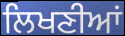
ਲਿਖਣੀਆਂ